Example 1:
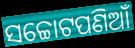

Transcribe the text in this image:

ସଚ୍ଚୋଟପଣିଆଁ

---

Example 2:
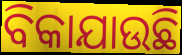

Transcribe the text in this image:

ବିକାଯାଉଛି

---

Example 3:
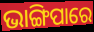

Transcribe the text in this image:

ଭାଙ୍ଗିପାରେ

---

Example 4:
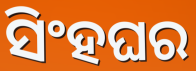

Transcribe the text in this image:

ସିଂହଘର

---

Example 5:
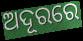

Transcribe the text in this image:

ଅଦୂରରେ